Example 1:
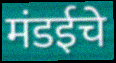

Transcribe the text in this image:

मंडईचे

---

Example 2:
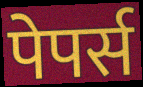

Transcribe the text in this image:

पेपर्स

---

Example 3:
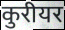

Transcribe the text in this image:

कुरीयर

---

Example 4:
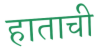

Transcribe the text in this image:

हाताची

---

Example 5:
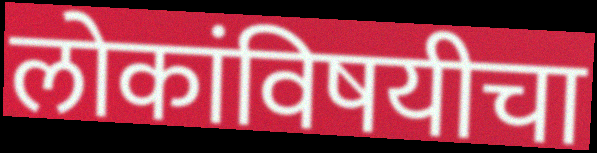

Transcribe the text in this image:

लोकांविषयीचा